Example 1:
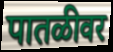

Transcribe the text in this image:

पातळीवर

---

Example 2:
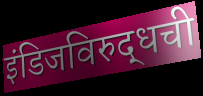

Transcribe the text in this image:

इंडिजविरुद्धची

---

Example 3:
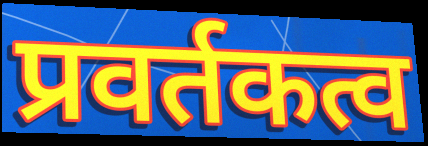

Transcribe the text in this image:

प्रवर्तकत्व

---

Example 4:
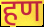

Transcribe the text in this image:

हण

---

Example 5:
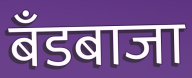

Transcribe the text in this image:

बँडबाजा